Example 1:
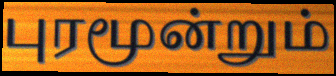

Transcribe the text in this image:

புரமூன்றும்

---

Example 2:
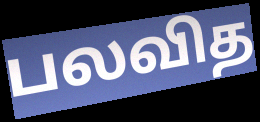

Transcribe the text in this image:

பலவித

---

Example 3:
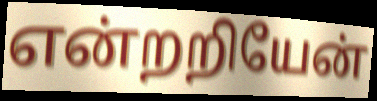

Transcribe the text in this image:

என்றறியேன்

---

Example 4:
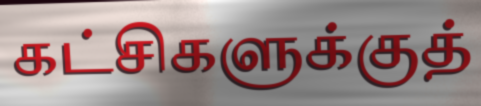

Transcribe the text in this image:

கட்சிகளுக்குத்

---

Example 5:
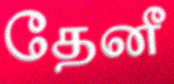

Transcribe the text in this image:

தேனீ